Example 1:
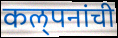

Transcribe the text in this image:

कल्पनांची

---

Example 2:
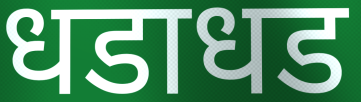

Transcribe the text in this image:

धडाधड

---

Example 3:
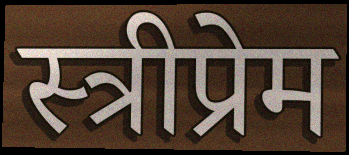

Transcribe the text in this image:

स्त्रीप्रेम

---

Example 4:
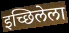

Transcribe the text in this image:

इच्छिलेला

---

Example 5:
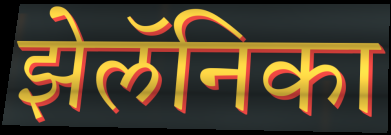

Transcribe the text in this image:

झेलॅनिका